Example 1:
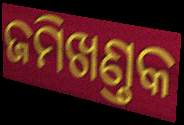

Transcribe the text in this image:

ଜମିଖଣ୍ତକ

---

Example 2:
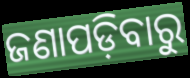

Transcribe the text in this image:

ଜଣାପଡ଼ିବାରୁ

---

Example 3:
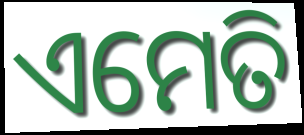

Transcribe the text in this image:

ଏମେତି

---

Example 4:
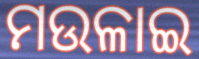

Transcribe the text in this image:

ମଉଳାଇ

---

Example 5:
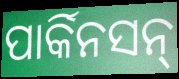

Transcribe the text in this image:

ପାର୍କିନସନ୍